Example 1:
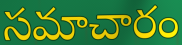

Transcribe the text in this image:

సమాచారం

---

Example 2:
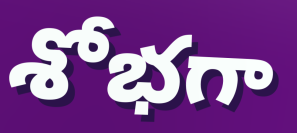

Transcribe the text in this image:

శోభగా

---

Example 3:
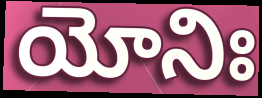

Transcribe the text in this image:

యోనిః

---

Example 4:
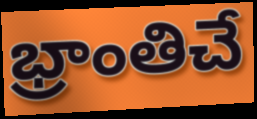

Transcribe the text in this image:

భ్రాంతిచే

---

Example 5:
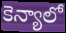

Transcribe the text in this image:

కెన్యాలో